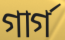
গাৰ্গ